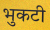
भुकटी